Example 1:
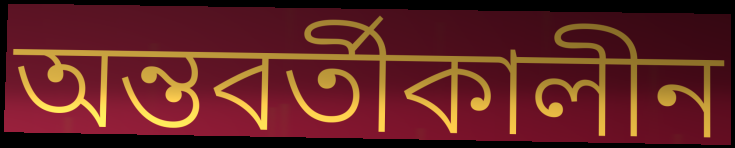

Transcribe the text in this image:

অন্তবর্তীকালীন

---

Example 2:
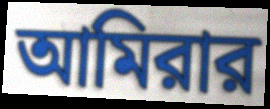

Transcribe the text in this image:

আমিরার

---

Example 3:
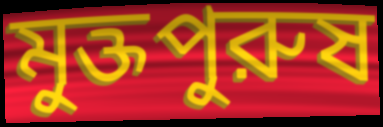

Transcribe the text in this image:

মুক্তপুরুষ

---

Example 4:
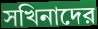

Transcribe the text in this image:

সখিনাদের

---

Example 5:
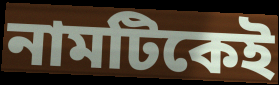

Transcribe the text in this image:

নামটিকেই